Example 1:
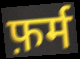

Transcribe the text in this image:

फ़र्म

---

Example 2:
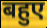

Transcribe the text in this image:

बहुए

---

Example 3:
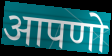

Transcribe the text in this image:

आपणो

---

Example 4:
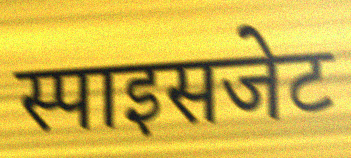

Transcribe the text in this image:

स्पाइसजेट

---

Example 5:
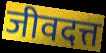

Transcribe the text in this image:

जीवदत्त